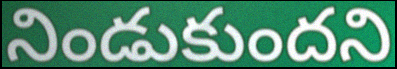
నిండుకుందని